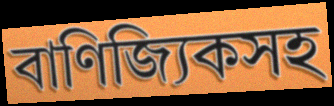
বাণিজ্যিকসহ